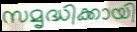
സമൃദ്ധിക്കായി